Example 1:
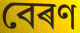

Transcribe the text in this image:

বেৰণ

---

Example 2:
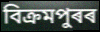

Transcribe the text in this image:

বিক্ৰমপুৰৰ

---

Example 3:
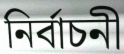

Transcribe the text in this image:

নিৰ্বাচনী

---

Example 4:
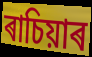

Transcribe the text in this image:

ৰাচিয়াৰ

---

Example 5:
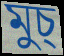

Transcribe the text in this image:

মুচ্